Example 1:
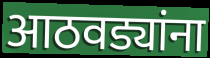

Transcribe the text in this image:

आठवड्यांना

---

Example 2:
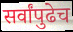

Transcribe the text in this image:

सर्वांपुढेच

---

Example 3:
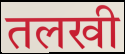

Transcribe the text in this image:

तलखी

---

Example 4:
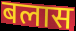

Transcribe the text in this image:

बलास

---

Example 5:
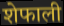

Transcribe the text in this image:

शेफाली